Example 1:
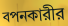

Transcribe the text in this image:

বপনকারীর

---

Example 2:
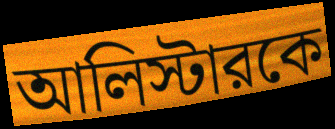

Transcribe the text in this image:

আলিস্টারকে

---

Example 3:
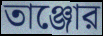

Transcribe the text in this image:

তাঞ্জোর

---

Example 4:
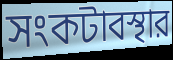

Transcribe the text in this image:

সংকটাবস্থার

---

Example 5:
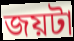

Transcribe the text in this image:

জয়টা